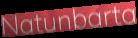
Natunbarta